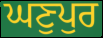
ਘਣੁਪੁਰ